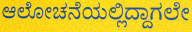
ಆಲೋಚನೆಯಲ್ಲಿದ್ದಾಗಲೇ